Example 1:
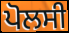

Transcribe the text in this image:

ਪੋਲਸੀ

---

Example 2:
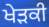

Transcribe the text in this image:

ਖੇੜਕੀ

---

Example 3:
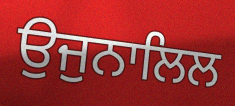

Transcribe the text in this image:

ਉਜੁਨਾਲਿਲ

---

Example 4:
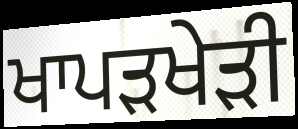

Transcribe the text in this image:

ਖਾਪੜਖੇੜੀ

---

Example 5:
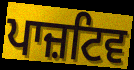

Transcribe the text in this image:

ਪਾਜ਼ਟਿਵ